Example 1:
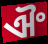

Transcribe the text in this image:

ଐଂ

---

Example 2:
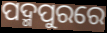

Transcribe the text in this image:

ପଦ୍ମପୁରରେ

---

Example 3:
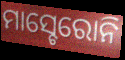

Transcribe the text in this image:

ମାସ୍ଚେରୋନି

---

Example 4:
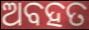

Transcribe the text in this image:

ଅବହତ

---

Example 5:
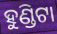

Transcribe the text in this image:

ହୁଣ୍ଡିଟା